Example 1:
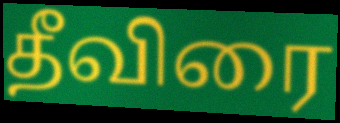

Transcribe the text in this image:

தீவிரை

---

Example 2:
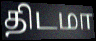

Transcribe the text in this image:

திடமா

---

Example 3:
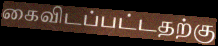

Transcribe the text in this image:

கைவிடப்பட்டதற்கு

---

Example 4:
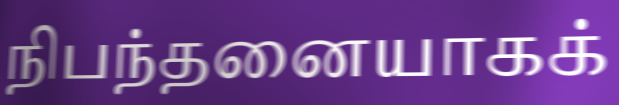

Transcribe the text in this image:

நிபந்தனையாகக்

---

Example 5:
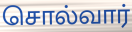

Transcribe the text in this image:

சொல்வார்